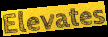
Elevates